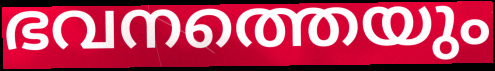
ഭവനത്തെയും